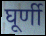
घूर्णी